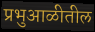
प्रभुआळीतील